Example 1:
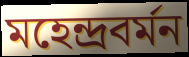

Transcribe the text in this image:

মহেন্দ্রবর্মন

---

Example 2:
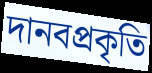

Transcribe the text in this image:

দানবপ্রকৃতি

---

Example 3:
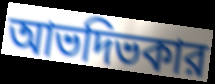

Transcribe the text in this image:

আভদিভকার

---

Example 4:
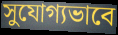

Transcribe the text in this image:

সুযোগ্যভাবে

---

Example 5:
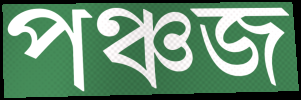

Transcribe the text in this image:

পঞ্চজ